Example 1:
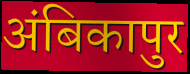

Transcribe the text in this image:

अंबिकापुर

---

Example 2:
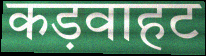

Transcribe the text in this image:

कड़वाहट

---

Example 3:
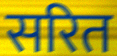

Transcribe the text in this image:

सरित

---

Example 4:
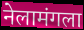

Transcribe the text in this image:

नेलामंगला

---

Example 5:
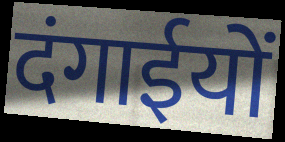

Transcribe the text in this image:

दंगाईयों